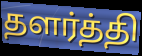
தளர்த்தி